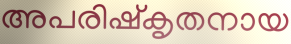
അപരിഷ്കൃതനായ